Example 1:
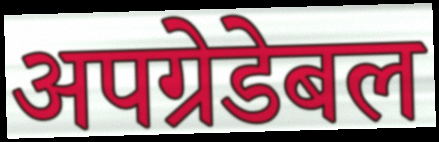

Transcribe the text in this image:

अपग्रेडेबल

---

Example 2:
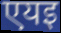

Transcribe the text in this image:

एयइ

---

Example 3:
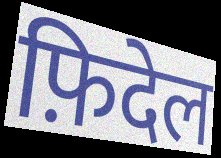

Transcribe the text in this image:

फ़िदेल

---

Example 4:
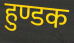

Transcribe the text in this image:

हुण्डक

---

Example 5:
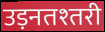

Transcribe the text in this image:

उड़नतश्तरी